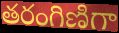
తరంగిణిగా